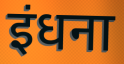
इंधना